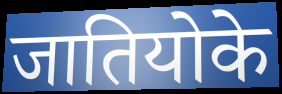
जातियोके